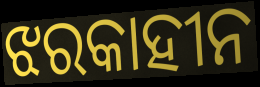
ଝରକାହୀନ